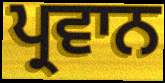
ਪ੍ਰਵਾਨ